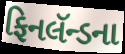
ફિનલૅન્ડના